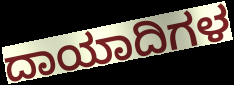
ದಾಯಾದಿಗಳ